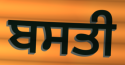
ਬਸਤੀ